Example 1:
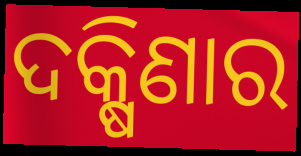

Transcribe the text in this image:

ଦକ୍ଷିଣାର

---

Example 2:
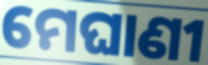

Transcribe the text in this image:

ମେଘାଣୀ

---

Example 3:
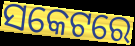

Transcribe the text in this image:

ସକେଟରେ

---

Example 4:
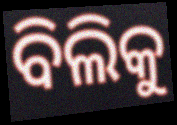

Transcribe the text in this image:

ବିଲିକୁ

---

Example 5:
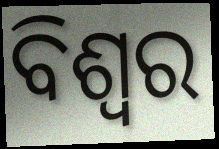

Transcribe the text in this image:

ବିଶ୍ଵର